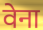
वेना